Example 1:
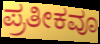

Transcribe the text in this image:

ಪ್ರತೀಕವೂ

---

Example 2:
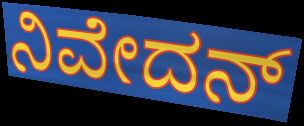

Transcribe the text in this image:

ನಿವೇದನ್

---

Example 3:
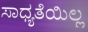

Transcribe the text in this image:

ಸಾಧ್ಯತೆಯಿಲ್ಲ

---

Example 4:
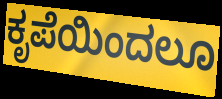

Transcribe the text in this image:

ಕೃಪೆಯಿಂದಲೂ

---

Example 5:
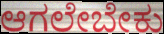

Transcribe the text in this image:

ಆಗಲೇಬೇಕು